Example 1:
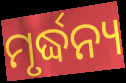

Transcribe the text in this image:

ମୃର୍ଦ୍ଧନ୍ୟ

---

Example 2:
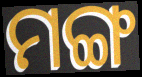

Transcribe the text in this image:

ମଙ୍ଗ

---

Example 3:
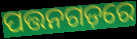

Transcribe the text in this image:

ପତ୍ତନଗଡ଼ରେ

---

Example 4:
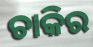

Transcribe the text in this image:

ଚାକିର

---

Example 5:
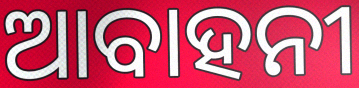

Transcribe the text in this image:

ଆବାହନୀ